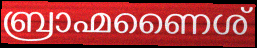
ബ്രാഹ്മണൈശ്